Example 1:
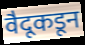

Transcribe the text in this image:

वैदूकडून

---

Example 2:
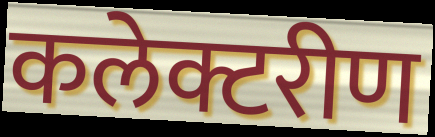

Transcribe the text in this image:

कलेक्टरीण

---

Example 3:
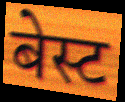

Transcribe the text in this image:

बेस्ट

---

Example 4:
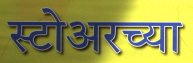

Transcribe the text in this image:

स्टोअरच्या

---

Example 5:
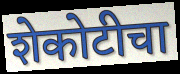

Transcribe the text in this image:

शेकोटीचा